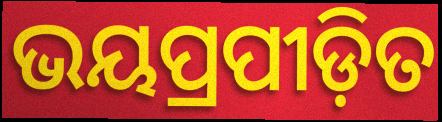
ଭୟପ୍ରପୀଡ଼ିତ